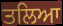
ਤਲਿਆ